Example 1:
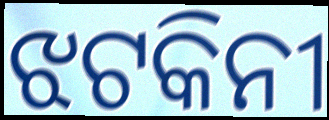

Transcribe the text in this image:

ଝଟକିନୀ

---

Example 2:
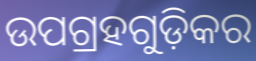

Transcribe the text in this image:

ଉପଗ୍ରହଗୁଡ଼ିକର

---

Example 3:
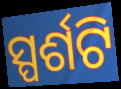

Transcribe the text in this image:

ସ୍ପର୍ଶଟି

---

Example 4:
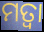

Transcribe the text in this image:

ମତ୍ୱା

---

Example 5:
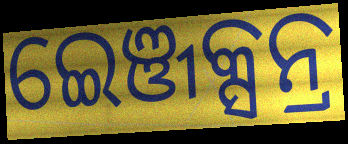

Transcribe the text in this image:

ଇେଞ୍ଜକ୍ସନ୍ର